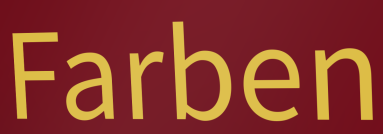
Farben